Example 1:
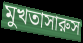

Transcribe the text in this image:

মুখতাসারুস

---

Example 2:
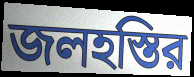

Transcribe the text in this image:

জলহস্তির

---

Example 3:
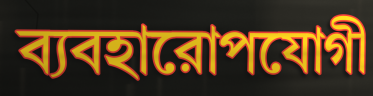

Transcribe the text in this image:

ব্যবহারোপযোগী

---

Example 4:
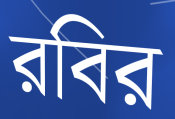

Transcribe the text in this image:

রবির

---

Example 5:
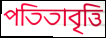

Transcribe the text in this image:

পতিতাবৃত্তি